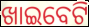
ଖାଇବେଟି